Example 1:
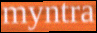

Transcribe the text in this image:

myntra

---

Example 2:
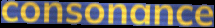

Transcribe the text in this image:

consonance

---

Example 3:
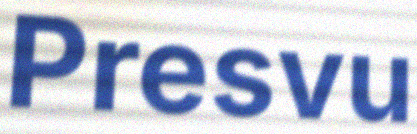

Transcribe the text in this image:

Presvu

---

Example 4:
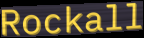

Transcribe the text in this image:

Rockall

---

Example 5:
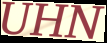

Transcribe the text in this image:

UHN